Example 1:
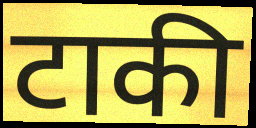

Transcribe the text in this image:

टाकी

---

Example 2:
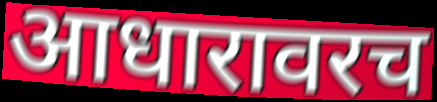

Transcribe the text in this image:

आधारावरच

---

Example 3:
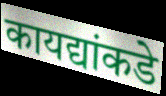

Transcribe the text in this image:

कायद्यांकडे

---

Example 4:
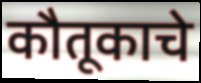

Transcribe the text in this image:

कौतूकाचे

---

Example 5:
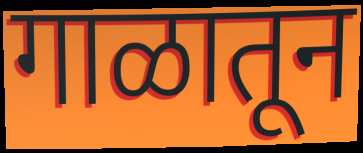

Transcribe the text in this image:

गाळातून